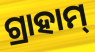
ଗ୍ରାହାମ୍